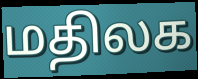
மதிலக